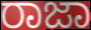
ರಾಜಾ